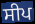
ਸੀਪ